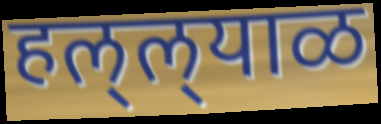
हल्ल्याळ